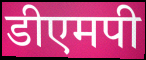
डीएमपी